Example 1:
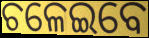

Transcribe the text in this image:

ଚଳେଇବେ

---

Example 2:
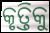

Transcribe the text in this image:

କୃତ୍ତିକୁ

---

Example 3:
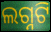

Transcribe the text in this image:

ଲଗ୍ନଟି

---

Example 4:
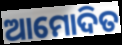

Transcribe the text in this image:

ଆମୋଦିତ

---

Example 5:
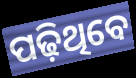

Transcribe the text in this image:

ପଢ଼ିଥିବେ